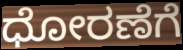
ಧೋರಣೆಗೆ